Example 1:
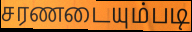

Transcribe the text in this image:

சரணடையும்படி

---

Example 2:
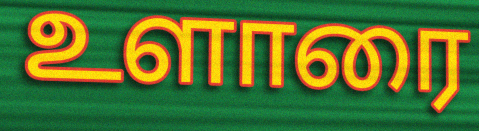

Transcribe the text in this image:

உளாரை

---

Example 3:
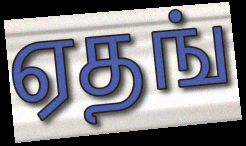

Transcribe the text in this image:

ஏதங்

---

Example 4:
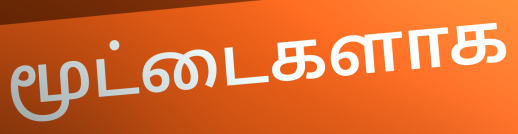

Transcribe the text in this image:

மூட்டைகளாக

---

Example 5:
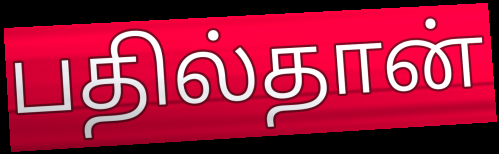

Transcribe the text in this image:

பதில்தான்